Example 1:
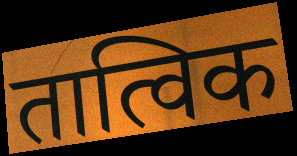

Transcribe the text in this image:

तात्विक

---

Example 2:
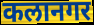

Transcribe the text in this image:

कलानगर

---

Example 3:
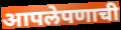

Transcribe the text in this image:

आपलेपणाची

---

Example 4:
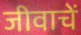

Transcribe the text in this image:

जीवाचें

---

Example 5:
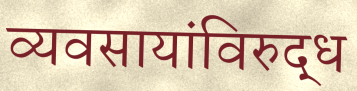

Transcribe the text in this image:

व्यवसायांविरुद्ध